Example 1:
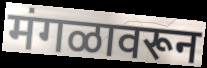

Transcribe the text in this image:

मंगळावरून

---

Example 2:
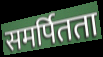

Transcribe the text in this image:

समर्पितता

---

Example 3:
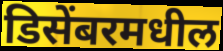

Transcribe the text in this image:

डिसेंबरमधील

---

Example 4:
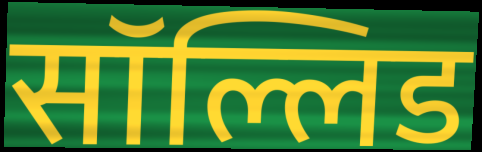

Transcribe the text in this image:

सॉल्लिड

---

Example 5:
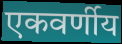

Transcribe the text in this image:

एकवर्णीय